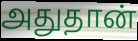
அதுதான்